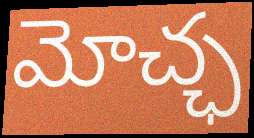
మోచ్ఛ